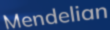
Mendelian